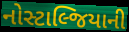
નોસ્ટાલ્જિયાની